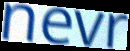
nevr